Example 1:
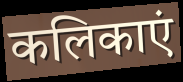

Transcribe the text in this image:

कलिकाएं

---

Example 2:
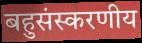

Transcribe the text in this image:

बहुसंस्करणीय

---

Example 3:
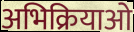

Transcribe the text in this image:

अभिक्रियाओ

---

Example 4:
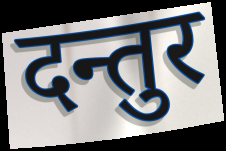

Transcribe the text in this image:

दन्तुर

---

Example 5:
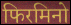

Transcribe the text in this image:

फिरमिनो